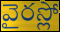
వైరస్లో